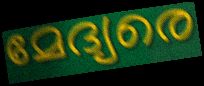
മേദ്യരെ